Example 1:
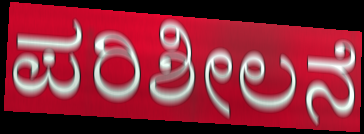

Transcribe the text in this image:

ಪರಿಶೀಲನೆ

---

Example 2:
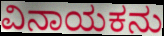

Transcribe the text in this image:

ವಿನಾಯಕನು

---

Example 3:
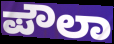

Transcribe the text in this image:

ಪೌಲಾ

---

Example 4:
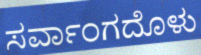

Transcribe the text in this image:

ಸರ್ವಾಂಗದೊಳು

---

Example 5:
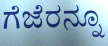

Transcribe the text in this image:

ಗೆಜೆರನ್ನೂ